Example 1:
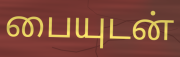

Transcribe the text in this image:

பையுடன்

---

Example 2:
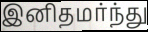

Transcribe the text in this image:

இனிதமர்ந்து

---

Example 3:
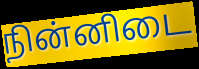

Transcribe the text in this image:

நின்னிடை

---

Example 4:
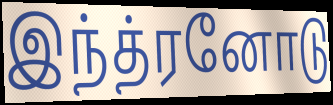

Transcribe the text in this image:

இந்த்ரனோடு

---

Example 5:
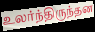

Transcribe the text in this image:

உலர்ந்திருந்தன